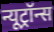
न्यूट्रॉन्स